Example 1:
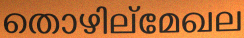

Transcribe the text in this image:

തൊഴില്മേഖല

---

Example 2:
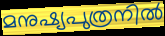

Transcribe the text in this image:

മനുഷ്യപുത്രനിൽ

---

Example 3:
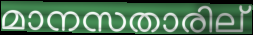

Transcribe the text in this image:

മാനസതാരില്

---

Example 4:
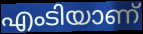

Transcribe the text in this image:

എംടിയാണ്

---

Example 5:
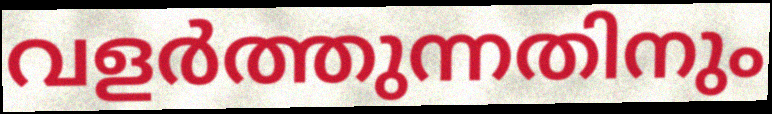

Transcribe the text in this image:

വളർത്തുന്നതിനും